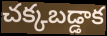
చక్కబడ్డాక